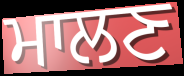
ਮਾਲਣ